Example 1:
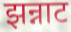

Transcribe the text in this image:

झन्नाट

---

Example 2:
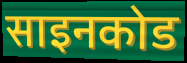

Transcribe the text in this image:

साइनकोड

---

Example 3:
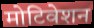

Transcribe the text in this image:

मोटिवेशन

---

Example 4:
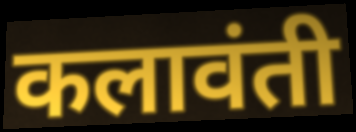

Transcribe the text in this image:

कलावंती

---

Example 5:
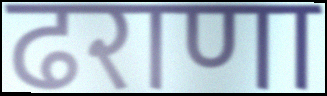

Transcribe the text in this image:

ढराणा